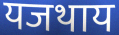
यजथाय